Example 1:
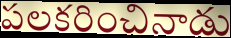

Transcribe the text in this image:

పలకరించినాడు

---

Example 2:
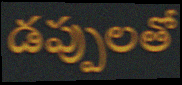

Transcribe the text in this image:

డప్పులతో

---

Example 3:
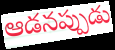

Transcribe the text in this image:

ఆడనప్పుడు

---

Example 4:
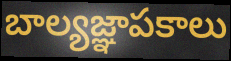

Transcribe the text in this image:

బాల్యజ్ఞాపకాలు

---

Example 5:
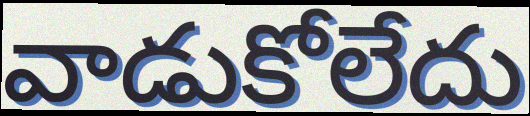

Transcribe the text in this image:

వాడుకోలేదు